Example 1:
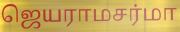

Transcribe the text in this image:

ஜெயராமசர்மா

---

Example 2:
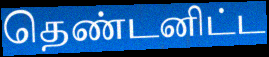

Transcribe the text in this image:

தெண்டனிட்ட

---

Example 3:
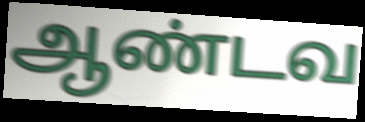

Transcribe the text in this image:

ஆண்டவ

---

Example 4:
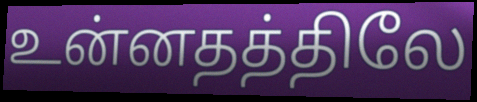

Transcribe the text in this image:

உன்னதத்திலே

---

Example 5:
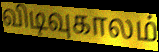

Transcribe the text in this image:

விடிவுகாலம்